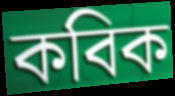
কবিক